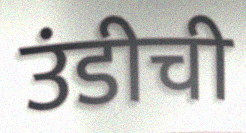
उंडीची